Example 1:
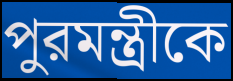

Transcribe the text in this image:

পুরমন্ত্রীকে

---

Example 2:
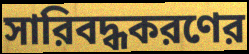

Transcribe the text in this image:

সারিবদ্ধকরণের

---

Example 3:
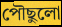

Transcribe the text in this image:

পৌছুলো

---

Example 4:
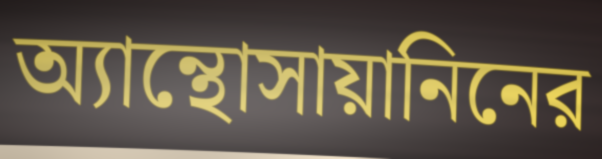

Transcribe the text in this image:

অ্যান্থোসায়ানিনের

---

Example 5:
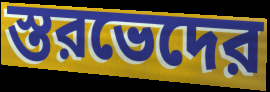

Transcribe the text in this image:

স্তরভেদের